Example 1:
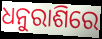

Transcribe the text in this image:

ଧନୁରାଶିରେ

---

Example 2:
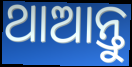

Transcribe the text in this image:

ଥାଆନ୍ତୁ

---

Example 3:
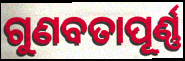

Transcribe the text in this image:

ଗୁଣବତାପୂର୍ଣ୍ଣ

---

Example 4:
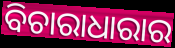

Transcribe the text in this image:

ବିଚାରାଧାରାର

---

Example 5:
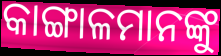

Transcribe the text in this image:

କାଙ୍ଗାଳମାନଙ୍କୁ